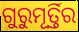
ଗୁରୁମୂର୍ତ୍ତିର